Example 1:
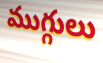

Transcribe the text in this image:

ముగ్గులు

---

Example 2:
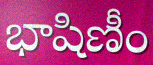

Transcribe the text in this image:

భాషిణీం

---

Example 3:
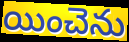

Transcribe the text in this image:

యించెను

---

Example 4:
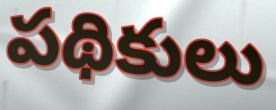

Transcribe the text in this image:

పథికులు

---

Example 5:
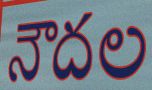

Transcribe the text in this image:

నౌదల